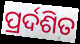
ପ୍ରର୍ଦଶିତ